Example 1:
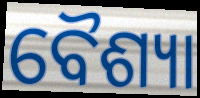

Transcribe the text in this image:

ବୈଶ୍ଯା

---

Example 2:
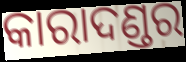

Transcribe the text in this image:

କାରାଦଣ୍ଡର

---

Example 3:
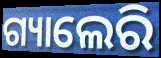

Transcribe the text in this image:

ଗ୍ୟାଲେରି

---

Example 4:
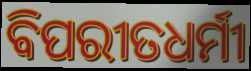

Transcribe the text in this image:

ବିପରୀତଧର୍ମୀ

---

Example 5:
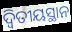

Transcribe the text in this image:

ଦ୍ୱିତୀୟସ୍ଥାନ